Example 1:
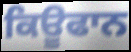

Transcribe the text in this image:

ਕਿਊਫਾਨ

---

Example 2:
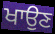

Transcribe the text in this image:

ਖਾਉਣ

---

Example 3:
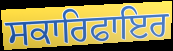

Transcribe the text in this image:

ਸਕਾਰਿਫਾਇਰ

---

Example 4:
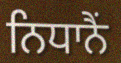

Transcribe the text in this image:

ਨਿਧਾਨੈਂ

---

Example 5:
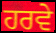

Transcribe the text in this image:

ਹਰਵੇ